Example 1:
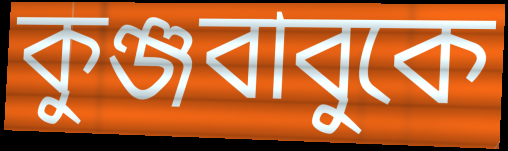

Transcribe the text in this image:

কুঞ্জবাবুকে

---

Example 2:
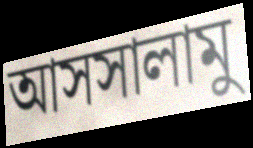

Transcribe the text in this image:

আসসালামু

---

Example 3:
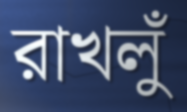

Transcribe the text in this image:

রাখলুঁ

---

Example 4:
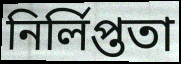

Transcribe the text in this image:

নির্লিপ্ততা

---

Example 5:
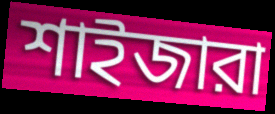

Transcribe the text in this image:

শাইজারা